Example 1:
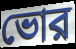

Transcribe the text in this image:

ভোর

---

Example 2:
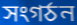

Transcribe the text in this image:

সংগঠন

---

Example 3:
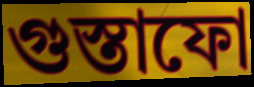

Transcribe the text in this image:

গুস্তাফো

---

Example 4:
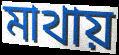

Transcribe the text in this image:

মাথায়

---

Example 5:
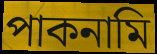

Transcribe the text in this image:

পাকনামি